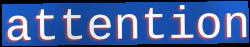
attention